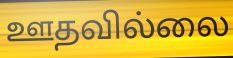
ஊதவில்லை